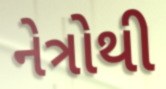
નેત્રોથી